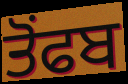
ਤੋਂਫਬ